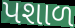
પશાળ